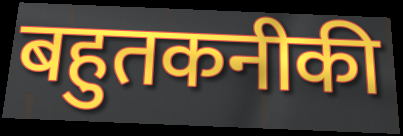
बहुतकनीकी